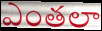
ఎంతలా